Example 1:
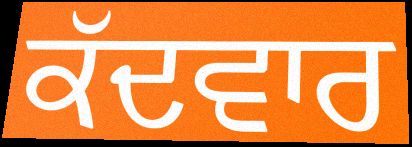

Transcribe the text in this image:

ਕੱਦਵਾਰ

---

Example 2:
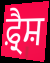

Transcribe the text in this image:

ਫ਼੍ਰੈਸ਼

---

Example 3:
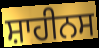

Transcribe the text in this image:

ਸ਼ਾਹੀਨਸ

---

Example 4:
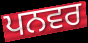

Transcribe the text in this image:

ਪਨਵਰ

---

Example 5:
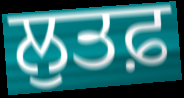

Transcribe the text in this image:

ਲੁਤਫ਼